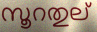
സൂറതുല്